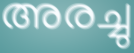
അരച്ചു